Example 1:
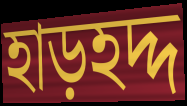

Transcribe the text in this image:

হাড়হদ্দ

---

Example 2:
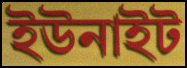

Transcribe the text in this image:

ইউনাইট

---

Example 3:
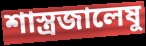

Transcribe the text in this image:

শাস্ত্রজালেষু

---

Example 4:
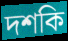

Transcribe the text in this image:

দশকি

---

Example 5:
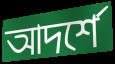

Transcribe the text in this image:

আদর্শে